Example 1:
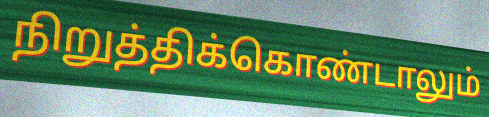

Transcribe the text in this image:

நிறுத்திக்கொண்டாலும்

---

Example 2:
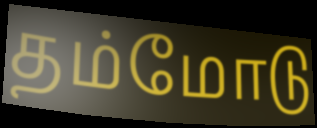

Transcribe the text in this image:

தம்மோடு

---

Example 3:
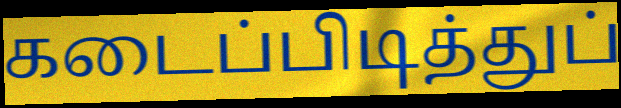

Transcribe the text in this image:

கடைப்பிடித்துப்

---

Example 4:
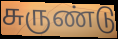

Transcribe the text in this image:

சுருண்டு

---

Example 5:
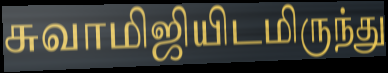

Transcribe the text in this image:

சுவாமிஜியிடமிருந்து